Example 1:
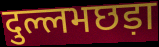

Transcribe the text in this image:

दुल्लभछड़ा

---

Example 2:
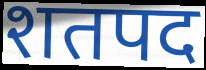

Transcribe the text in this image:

शतपद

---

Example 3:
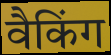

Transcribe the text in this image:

वैकिंग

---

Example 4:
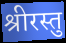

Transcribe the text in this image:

श्रीरस्तु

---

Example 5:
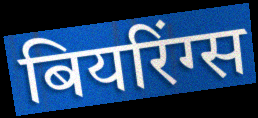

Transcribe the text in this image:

बियरिंग्स